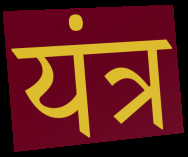
यंत्र